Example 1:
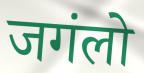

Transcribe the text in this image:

जगंलो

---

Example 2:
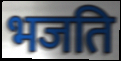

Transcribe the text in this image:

भजति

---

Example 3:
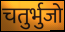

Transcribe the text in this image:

चतुर्भुजो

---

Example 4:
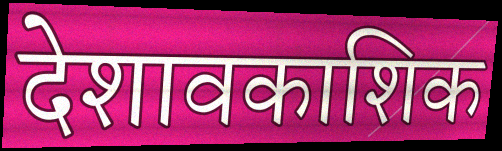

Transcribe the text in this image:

देशावकाशिक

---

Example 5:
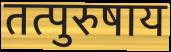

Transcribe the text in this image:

तत्पुरुषाय